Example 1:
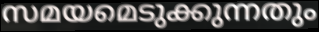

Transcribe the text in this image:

സമയമെടുക്കുന്നതും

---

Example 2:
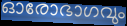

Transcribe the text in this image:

ഓരോഭാഗവും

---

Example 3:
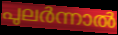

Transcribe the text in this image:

പുലർന്നാൽ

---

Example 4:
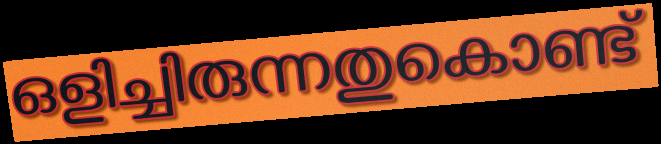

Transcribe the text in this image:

ഒളിച്ചിരുന്നതുകൊണ്ട്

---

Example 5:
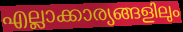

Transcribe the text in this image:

എല്ലാക്കാര്യങ്ങളിലും